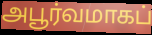
அபூர்வமாகப்